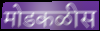
मोडकळीस